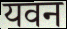
यवन